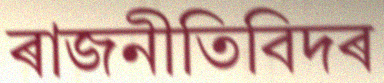
ৰাজনীতিবিদৰ